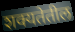
शक्यतेतील